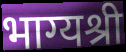
भाग्यश्री